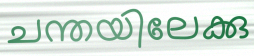
ചന്തയിലേക്കു